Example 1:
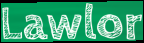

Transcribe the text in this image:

Lawlor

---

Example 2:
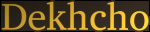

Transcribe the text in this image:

Dekhcho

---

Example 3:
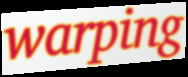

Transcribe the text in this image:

warping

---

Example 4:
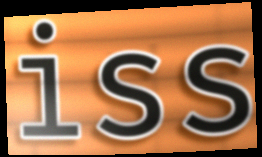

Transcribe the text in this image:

iss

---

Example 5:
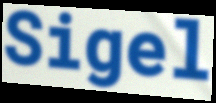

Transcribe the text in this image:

Sigel